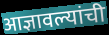
आज्ञावल्यांची